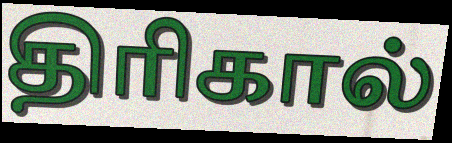
திரிகால்